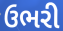
ઉભરી